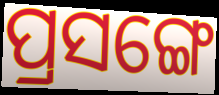
ପ୍ରସଙ୍ଗେ